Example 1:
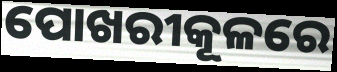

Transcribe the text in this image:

ପୋଖରୀକୂଳରେ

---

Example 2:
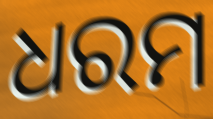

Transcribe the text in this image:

ଧରମ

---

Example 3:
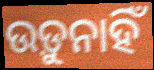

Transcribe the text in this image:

ଉଡ଼ୁନାହିଁ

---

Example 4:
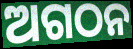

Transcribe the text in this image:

ଅଗଠନ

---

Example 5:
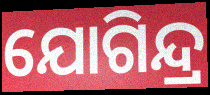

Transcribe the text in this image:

ଯୋଗିନ୍ଦ୍ର